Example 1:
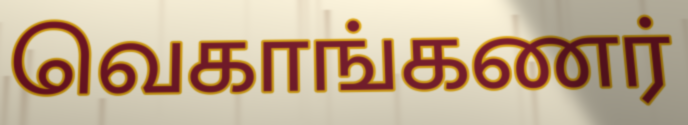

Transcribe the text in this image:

வெகாங்கணர்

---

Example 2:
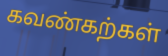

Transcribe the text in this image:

கவண்கற்கள்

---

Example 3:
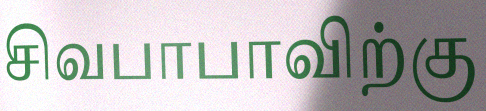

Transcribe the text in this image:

சிவபாபாவிற்கு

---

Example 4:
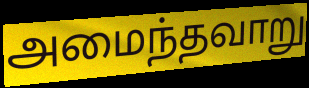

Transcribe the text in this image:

அமைந்தவாறு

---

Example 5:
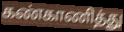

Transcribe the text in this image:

கண்காணித்து